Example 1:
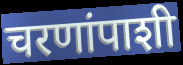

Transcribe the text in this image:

चरणांपाशी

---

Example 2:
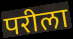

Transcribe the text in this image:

परीला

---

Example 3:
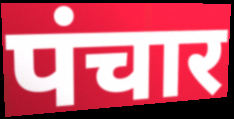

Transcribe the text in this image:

पंचार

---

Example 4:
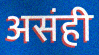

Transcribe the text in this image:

असंही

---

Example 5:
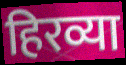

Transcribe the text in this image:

हिरव्या